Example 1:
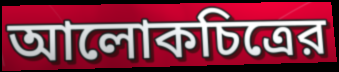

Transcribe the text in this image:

আলোকচিত্রের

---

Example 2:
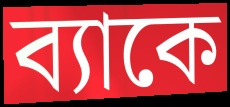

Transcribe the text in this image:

ব্যাকে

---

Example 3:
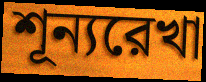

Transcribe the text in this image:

শূন্যরেখা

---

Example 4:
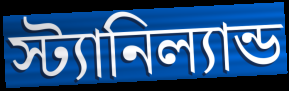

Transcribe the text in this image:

স্ট্যানিল্যান্ড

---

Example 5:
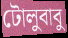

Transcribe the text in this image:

টোলুবাবু